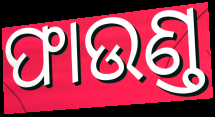
ଫାଉଣ୍ଡ